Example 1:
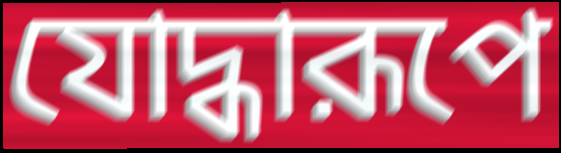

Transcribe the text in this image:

যোদ্ধারূপে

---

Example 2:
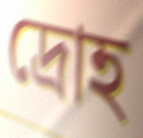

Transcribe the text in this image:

দ্রোহ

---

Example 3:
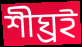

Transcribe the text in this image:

শীঘ্রই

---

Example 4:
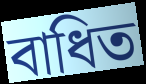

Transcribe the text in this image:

বাধিত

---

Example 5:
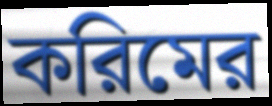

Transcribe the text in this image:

করিমের